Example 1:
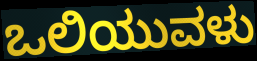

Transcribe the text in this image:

ಒಲಿಯುವಳು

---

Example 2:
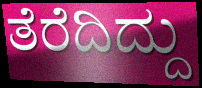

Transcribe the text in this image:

ತೆರೆದಿದ್ದು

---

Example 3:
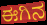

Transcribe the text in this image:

ಈಗಿನ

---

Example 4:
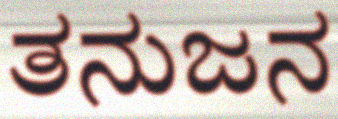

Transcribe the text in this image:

ತನುಜನ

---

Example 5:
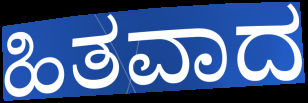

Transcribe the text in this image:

ಹಿತವಾದ